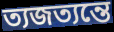
ত্যজত্যন্তে